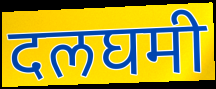
दलघमी